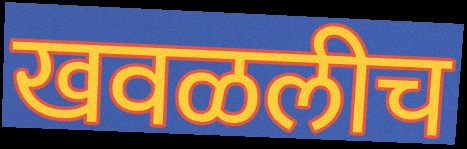
खवळलीच